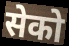
सेको